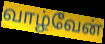
வாழ்வேன்